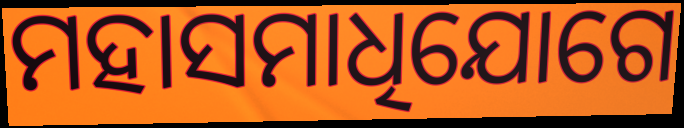
ମହାସମାଧିଯୋଗେ